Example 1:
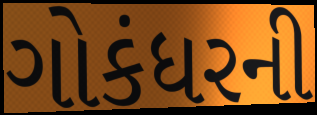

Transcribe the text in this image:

ગોકંધરની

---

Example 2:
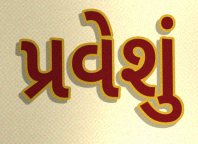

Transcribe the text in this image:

પ્રવેશું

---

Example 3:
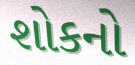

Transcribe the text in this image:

શોકનો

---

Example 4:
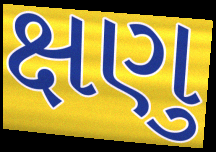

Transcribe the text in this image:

ક્ષણુ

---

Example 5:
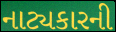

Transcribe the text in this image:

નાટ્યકારની